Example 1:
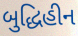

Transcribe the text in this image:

બુદ્ધિહીન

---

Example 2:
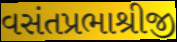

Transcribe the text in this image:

વસંતપ્રભાશ્રીજી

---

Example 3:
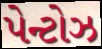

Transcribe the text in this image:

પેન્ટોઝ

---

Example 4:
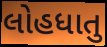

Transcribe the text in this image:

લોહધાતુ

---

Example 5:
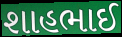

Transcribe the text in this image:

શાહભાઈ